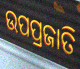
ଉପପ୍ରଜାତି